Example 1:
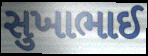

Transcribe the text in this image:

સુખાભાઈ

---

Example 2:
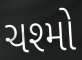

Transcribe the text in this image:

ચશ્મો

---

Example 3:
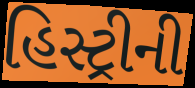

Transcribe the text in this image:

હિસ્ટ્રીની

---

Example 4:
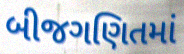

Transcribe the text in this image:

બીજગણિતમાં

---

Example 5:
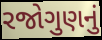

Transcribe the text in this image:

રજોગુણનું